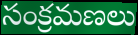
సంక్రమణలు